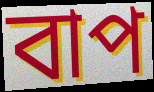
বাপ